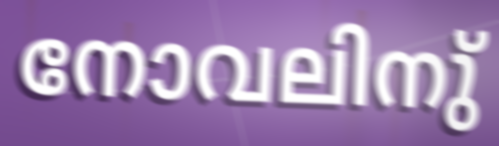
നോവലിനു്